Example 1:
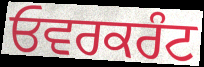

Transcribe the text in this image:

ਓਵਰਕਰੰਟ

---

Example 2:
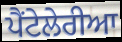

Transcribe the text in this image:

ਪੈਂਟੇਲੇਰੀਆ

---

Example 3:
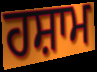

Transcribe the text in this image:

ਹਸ਼ਾਮ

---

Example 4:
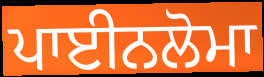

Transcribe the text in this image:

ਪਾਈਨਲੋਮਾ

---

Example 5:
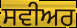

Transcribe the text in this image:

ਸਵੀਅਰ